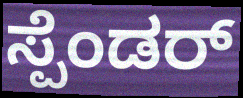
ಸ್ಪೆಂಡರ್